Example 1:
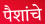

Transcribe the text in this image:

पैशांचे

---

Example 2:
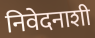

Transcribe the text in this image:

निवेदनाशी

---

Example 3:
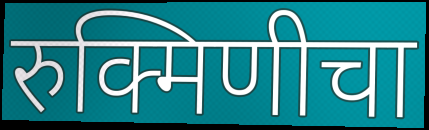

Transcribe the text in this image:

रुक्मिणीचा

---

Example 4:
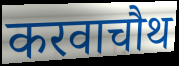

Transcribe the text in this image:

करवाचौथ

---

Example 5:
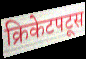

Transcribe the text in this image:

क्रिकेटपटूस